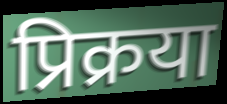
प्रिक्रया